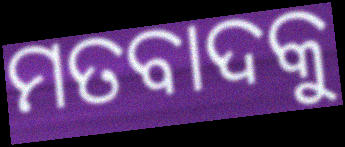
ମତବାଦକୁ